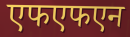
एफएफएन